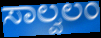
ಸಾಲ್ವಲಂ